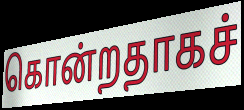
கொன்றதாகச்